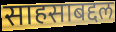
साहसाबद्दल